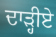
ਦਾੜ੍ਹੀਏ